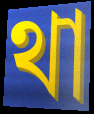
থা